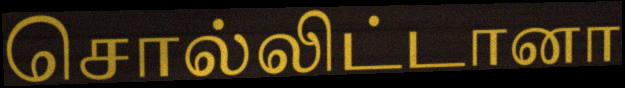
சொல்லிட்டானா